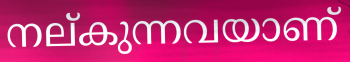
നല്കുന്നവയാണ്